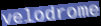
velodrome